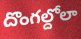
దొంగల్దోలా